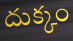
దుక్కం